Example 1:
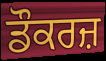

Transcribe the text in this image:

ਡੌਕਰਜ਼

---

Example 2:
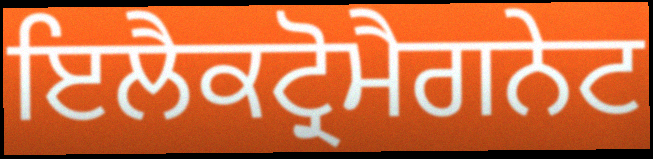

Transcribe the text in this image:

ਇਲੈਕਟ੍ਰੋਮੈਗਨੇਟ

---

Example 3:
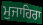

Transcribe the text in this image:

ਮੁਜਾਹਿਰਾ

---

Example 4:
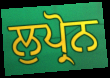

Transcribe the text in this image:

ਲੁਪ੍ਰੋਨ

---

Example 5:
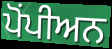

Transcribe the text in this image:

ਪੋਂਪੀਅਨ